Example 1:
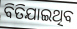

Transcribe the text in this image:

ବିତିଯାଇଥିବ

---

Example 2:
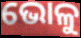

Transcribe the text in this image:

ଭୋଳୁ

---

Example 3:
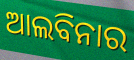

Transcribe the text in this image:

ଆଲବିନାର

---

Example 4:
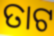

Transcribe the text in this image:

ତାଟ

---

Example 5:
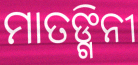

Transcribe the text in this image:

ମାତଙ୍ଗିନୀ